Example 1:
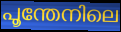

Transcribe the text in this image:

പൂന്തേനിലെ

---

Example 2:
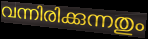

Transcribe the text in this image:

വന്നിരിക്കുന്നതും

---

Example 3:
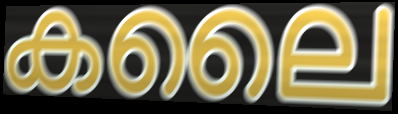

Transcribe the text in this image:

കലൈ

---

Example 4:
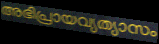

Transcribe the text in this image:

അഭിപ്രായവ്യത്യാസം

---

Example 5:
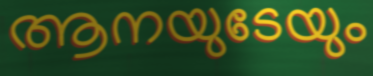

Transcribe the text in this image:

ആനയുടേയും